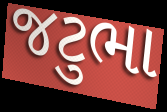
જટુભા